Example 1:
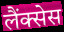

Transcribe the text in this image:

लैंक्‍सेस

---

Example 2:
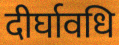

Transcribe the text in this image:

दीर्घावधि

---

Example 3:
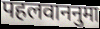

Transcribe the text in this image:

पहलवाननुमा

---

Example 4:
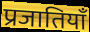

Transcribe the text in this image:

प्रजातियाँ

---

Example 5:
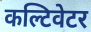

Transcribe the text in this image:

कल्टिवेटर